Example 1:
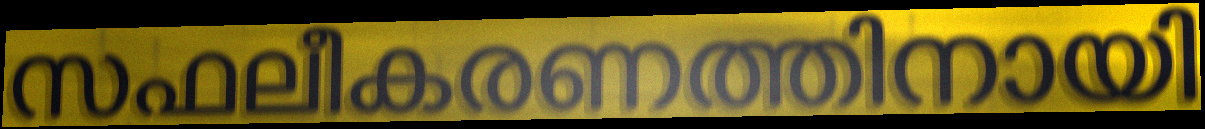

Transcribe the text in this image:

സഫലീകരണത്തിനായി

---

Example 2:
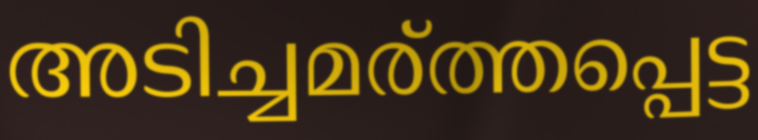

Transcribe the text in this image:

അടിച്ചമര്ത്തപ്പെട്ട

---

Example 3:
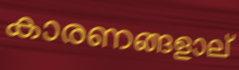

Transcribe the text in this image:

കാരണങ്ങളാല്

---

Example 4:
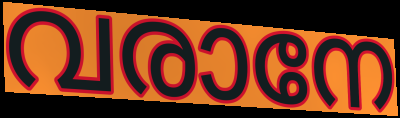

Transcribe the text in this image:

വരാനേ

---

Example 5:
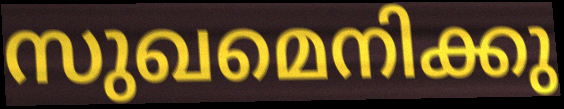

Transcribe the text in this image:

സുഖമെനിക്കു